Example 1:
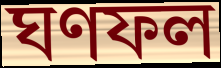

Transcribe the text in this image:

ঘণফল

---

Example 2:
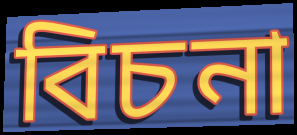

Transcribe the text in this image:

বিচনা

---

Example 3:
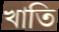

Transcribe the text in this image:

খাতি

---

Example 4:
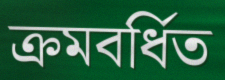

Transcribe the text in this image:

ক্ৰমবৰ্ধিত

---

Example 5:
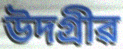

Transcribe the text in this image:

উদগ্ৰীৱ